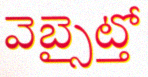
వెబ్సైట్తో